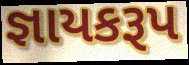
જ્ઞાયકરૂપ